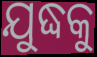
ଯୁଦ୍ଧକୁ